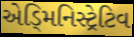
એડ્મિનિસ્ટ્રેટિવ